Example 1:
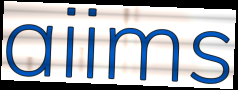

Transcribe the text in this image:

aiims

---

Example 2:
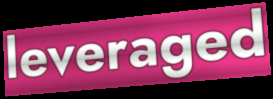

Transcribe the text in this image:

leveraged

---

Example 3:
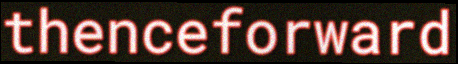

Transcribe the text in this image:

thenceforward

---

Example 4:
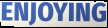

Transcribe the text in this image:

ENJOYING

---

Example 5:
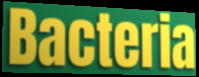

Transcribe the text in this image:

Bacteria